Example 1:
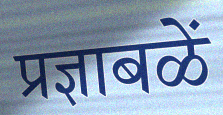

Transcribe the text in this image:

प्रज्ञाबळें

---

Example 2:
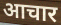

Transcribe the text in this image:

आचार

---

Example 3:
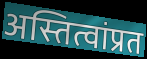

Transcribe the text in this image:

अस्तित्वांप्रत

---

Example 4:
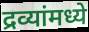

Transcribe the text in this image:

द्रव्यांमध्ये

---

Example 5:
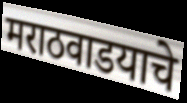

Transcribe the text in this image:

मराठवाडयाचे